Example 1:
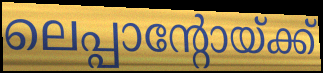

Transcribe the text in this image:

ലെപ്പാന്റോയ്ക്ക്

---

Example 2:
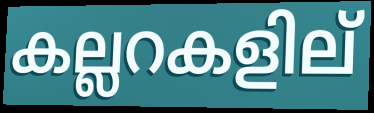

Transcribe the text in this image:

കല്ലറകളില്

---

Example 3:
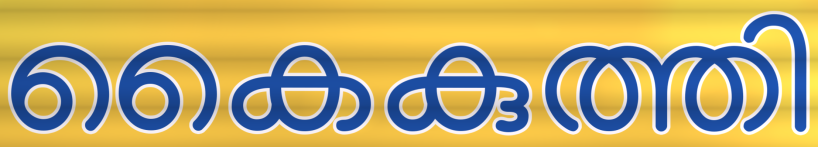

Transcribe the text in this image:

കൈകുത്തി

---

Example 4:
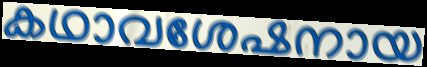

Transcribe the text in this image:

കഥാവശേഷനായ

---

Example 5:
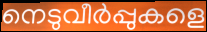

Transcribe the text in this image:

നെടുവീർപ്പുകളെ